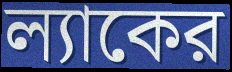
ল্যাকের